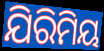
ଯିରିମିୟ